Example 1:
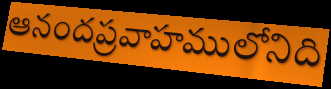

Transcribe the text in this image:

ఆనందప్రవాహములోనిది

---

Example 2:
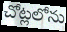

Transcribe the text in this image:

చోట్లలోను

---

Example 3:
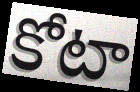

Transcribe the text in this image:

కోటా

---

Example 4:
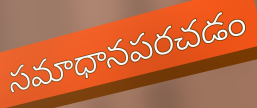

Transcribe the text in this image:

సమాధానపరచడం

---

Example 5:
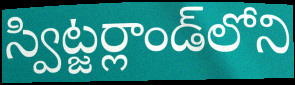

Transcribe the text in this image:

స్విట్జర్లాండ్‌లోని